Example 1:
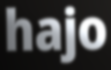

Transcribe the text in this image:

hajo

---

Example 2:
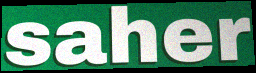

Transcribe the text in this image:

saher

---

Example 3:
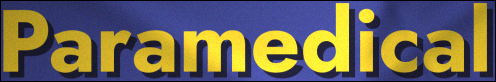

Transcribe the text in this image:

Paramedical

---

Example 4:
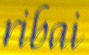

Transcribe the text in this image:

ribai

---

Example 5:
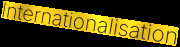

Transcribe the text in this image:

Internationalisation